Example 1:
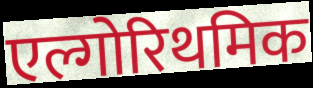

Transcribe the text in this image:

एल्गोरिथमिक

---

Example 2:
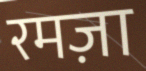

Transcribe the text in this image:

रमज़ा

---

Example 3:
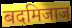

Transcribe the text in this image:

बदमिजाज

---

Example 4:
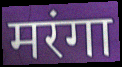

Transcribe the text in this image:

मरंगा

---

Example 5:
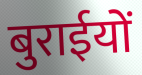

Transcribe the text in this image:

बुराईयों